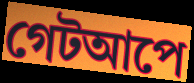
গেটআপে